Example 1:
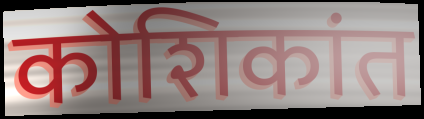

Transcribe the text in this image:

कोशिकांत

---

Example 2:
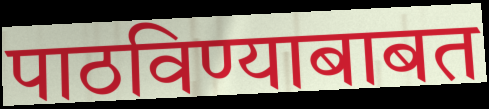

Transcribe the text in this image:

पाठविण्याबाबत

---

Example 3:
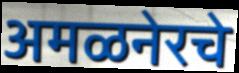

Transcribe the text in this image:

अमळनेरचे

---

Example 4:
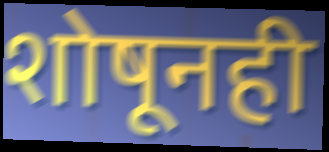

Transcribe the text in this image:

शोषूनही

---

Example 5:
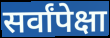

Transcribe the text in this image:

सर्वांपेक्षा